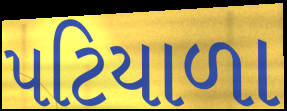
પટિયાળા